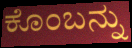
ಕೊಂಬನ್ನು